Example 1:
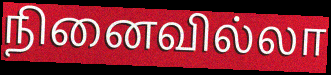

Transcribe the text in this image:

நினைவில்லா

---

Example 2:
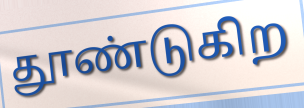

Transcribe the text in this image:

தூண்டுகிற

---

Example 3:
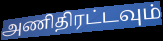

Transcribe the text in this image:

அணிதிரட்டவும்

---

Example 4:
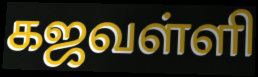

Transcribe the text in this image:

கஜவள்ளி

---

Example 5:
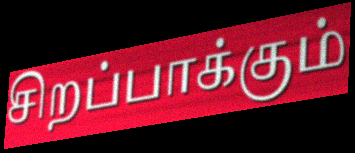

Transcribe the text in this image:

சிறப்பாக்கும்